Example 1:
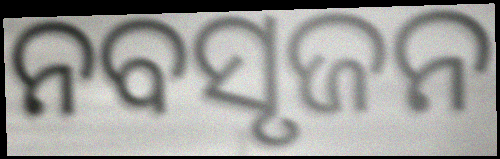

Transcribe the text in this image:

ନବସୃଜନ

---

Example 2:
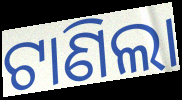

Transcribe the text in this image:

ଟାଣିଲା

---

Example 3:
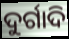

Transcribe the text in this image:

ଦୁର୍ଗାଦି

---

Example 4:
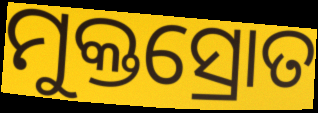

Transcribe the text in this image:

ମୁକ୍ତସ୍ରୋତ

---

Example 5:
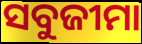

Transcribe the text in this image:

ସବୁଜୀମା